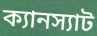
ক্যানস্যাট